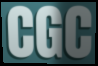
CGC